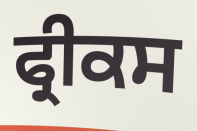
ਫ੍ਰੀਕਸ